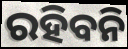
ରହିବନି